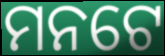
ମନଟେ